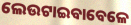
ଲେଉଟାଇବାବେଳେ